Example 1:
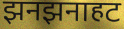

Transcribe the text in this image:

झनझनाहट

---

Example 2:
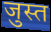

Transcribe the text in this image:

जुस्त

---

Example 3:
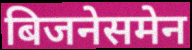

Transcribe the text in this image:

बिजनेसमेन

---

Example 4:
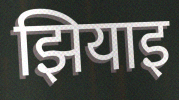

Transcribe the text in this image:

झियाइ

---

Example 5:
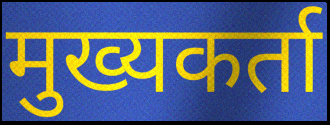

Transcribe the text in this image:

मुख्यकर्ता